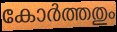
കോർത്തതും